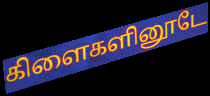
கிளைகளினூடே